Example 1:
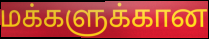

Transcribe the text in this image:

மக்களுக்கான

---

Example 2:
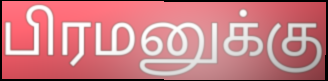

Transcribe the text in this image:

பிரமனுக்கு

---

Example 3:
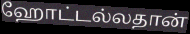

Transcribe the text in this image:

ஹோட்டல்லதான்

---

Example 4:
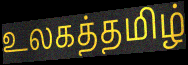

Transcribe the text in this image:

உலகத்தமிழ்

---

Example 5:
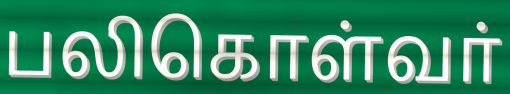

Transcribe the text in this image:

பலிகொள்வர்